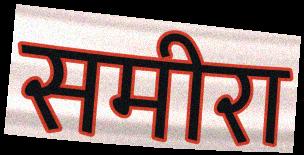
समीरा